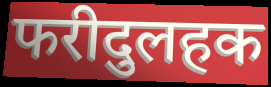
फरीदुलहक